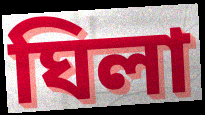
ঘিলা